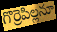
గొర్రెపిల్లనూ